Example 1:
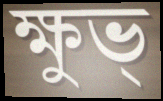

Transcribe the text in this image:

ক্ষুভ্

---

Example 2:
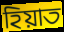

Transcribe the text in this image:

হিয়াত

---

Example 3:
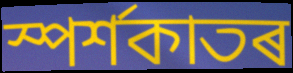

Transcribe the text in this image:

স্পৰ্শকাতৰ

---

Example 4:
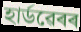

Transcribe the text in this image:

হাৰ্ডৱেৰৰ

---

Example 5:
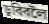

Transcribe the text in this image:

ডুবিবলৈ